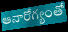
ఆనారోగ్యంతో